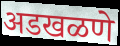
अडखळणे